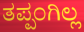
ತಪ್ಪಂಗಿಲ್ಲ